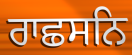
ਰਾਛਸਨਿ